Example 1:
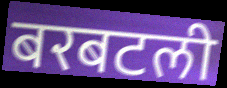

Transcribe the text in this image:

बरबटली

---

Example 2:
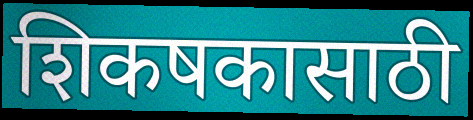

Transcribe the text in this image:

शिकषकासाठी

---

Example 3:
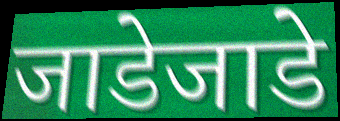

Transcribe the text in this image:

जाडेजाडे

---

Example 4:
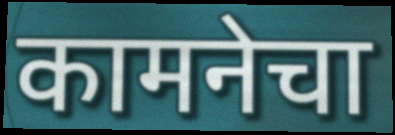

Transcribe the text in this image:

कामनेचा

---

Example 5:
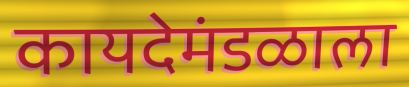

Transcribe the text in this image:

कायदेमंडळाला